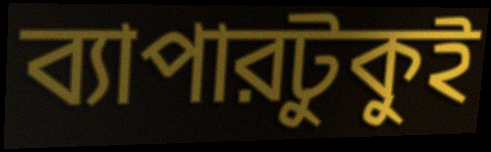
ব্যাপারটুকুই